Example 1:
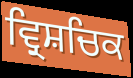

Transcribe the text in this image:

ਵ੍ਰਿਸ਼ਚਿਕ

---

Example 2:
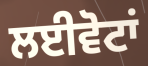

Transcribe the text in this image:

ਲਈਵੋਟਾਂ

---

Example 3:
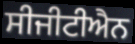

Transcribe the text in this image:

ਸੀਜੀਟੀਐਨ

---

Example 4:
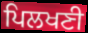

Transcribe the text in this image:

ਪਿਲਖਣੀ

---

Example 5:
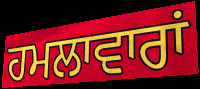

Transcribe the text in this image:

ਹਮਲਾਵਾਰਾਂ